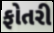
ફોતરી